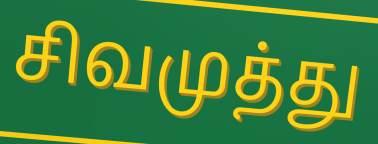
சிவமுத்து